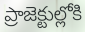
ప్రాజెక్టుల్లోకి